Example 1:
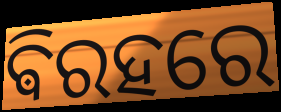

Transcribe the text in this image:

ଵିରହରେ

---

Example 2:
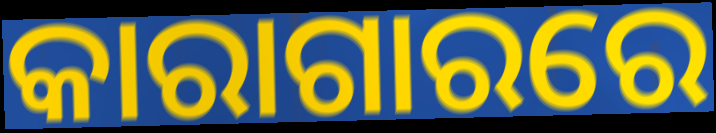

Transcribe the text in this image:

କାରାଗାରରେ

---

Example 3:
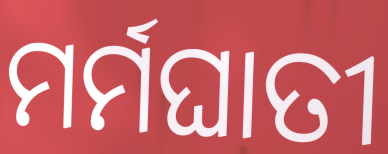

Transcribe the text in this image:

ମର୍ମଘାତୀ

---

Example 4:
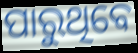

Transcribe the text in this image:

ପାରୁଥିବେ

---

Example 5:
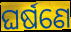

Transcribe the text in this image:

ଘର୍ଷଣେ